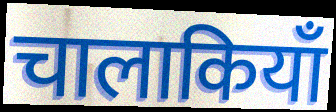
चालाकियाँ